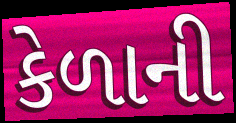
કેળાની